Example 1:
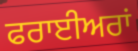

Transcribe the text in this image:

ਫਰਾਈਅਰਾਂ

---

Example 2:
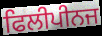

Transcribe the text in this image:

ਫਿਲੀਪੀਨਜ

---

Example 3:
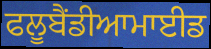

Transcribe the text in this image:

ਫਲੂਬੈਂਡੀਆਮਾਈਡ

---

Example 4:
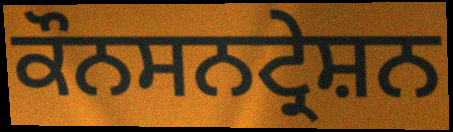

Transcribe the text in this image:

ਕੌਨਸਨਟ੍ਰੇਸ਼ਨ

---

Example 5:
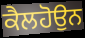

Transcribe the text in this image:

ਕੈਲਹੋਉਨ